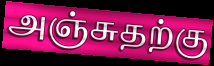
அஞ்சுதற்கு